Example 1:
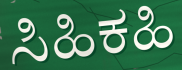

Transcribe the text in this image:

ಸಿಹಿಕಹಿ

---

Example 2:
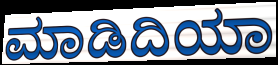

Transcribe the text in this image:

ಮಾಡಿದಿಯಾ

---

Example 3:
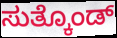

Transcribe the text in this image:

ಸುತ್ಕೊಂಡ್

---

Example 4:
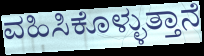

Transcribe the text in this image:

ವಹಿಸಿಕೊಳ್ಳುತ್ತಾನೆ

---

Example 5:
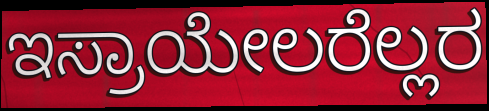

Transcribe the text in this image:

ಇಸ್ರಾಯೇಲರೆಲ್ಲರ